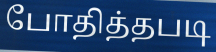
போதித்தபடி